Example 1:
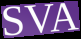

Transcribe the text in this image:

SVA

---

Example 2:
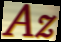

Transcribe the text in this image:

Az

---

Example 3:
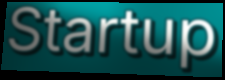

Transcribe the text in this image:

Startup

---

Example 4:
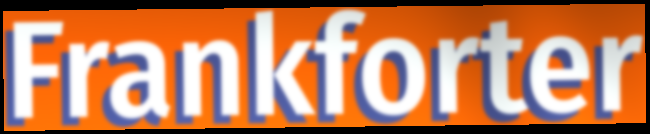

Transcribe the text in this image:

Frankforter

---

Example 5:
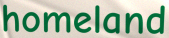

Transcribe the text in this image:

homeland